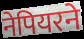
नेपियरने